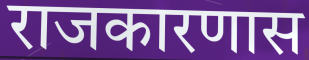
राजकारणास